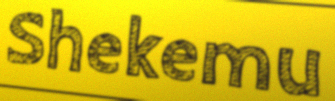
Shekemu